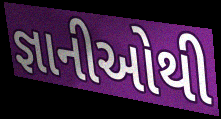
જ્ઞાનીઓથી